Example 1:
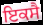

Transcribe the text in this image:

ਇਕਸੈ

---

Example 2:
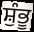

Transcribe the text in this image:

ਸ਼ੁੰਭੂ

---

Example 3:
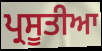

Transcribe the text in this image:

ਪ੍ਰਸੂਤੀਆ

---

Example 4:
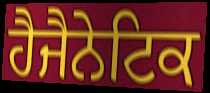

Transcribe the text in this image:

ਹੈਜੈਨੇਟਿਕ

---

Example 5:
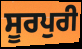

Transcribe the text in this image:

ਸੂਰਪੁਰੀ